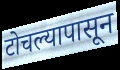
टोचल्यापासून